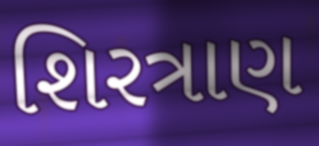
શિરત્રાણ